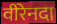
वीरेनदा